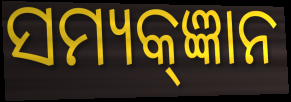
ସମ୍ୟକ୍‌ଜ୍ଞାନ